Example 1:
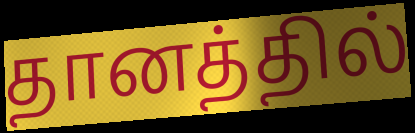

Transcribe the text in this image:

தானத்தில்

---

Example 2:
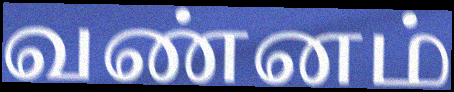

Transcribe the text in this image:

வண்னம்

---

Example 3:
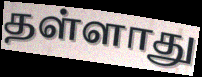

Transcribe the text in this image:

தள்ளாது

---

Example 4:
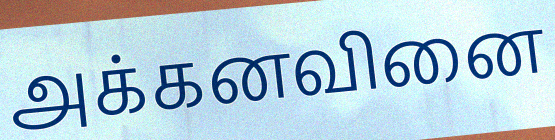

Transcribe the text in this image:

அக்கனவினை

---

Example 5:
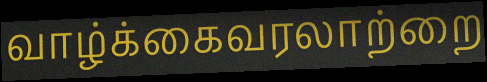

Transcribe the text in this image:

வாழ்க்கைவரலாற்றை